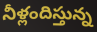
నీళ్లందిస్తున్న